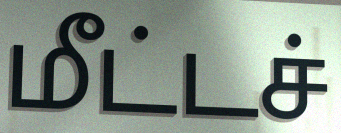
மீட்டச்